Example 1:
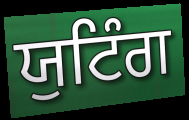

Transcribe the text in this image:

ਯੁਟਿੰਗ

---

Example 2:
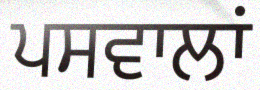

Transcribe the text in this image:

ਪਸਵਾਲਾਂ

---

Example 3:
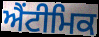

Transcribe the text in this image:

ਐਂਟੀਮਿਕ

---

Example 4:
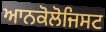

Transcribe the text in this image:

ਆਨਕੋਲੋਜਿਸਟ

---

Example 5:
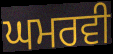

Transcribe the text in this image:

ਘਮਰਵੀ